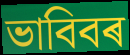
ভাবিবৰ